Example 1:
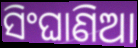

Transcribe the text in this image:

ସିଂଘାଣିଆ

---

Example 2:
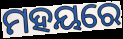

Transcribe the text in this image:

ମହୟରେ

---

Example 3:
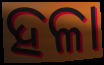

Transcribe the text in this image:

ହଳା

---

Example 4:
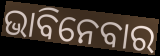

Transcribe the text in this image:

ଭାବିନେବାର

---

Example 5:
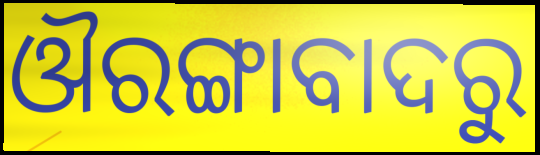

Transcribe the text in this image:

ଔରଙ୍ଗାବାଦରୁ